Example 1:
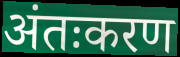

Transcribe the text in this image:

अंतःकरण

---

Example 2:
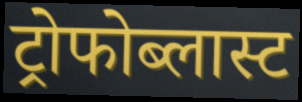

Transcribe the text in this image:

ट्रोफोब्लास्ट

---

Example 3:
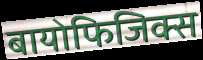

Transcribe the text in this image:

बायोफिजिक्स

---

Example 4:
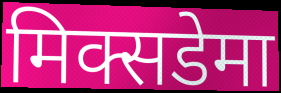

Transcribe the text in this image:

मिक्सडेमा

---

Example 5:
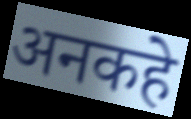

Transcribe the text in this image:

अनकहे